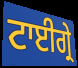
ਟਾਈਗ੍ਰੇ